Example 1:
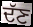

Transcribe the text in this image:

ਦੱਣ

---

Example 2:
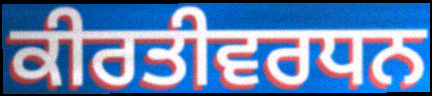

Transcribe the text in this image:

ਕੀਰਤੀਵਰਧਨ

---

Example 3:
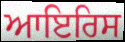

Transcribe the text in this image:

ਆਇਰਿਸ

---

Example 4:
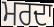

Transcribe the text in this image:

ਮਰਦਾ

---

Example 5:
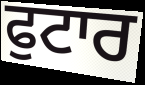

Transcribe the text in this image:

ਫੁਟਾਰ